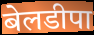
बेलडीपा